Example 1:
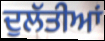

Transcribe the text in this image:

ਦੁਲੱਤੀਆਂ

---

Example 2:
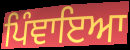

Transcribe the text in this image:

ਪਿੰਞਾਇਆ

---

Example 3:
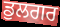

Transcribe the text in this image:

ਡੁਲਗਰ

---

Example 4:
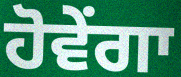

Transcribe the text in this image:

ਹੋਵੇਂਗਾ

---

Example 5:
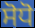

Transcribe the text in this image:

ਸੋਧੋ